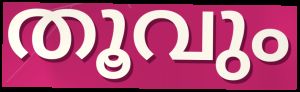
തൂവും